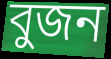
বুজন